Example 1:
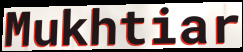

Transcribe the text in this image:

Mukhtiar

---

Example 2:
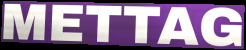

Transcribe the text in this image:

METTAG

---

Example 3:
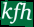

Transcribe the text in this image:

kfh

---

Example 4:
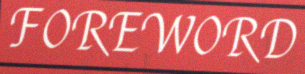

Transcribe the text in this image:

FOREWORD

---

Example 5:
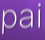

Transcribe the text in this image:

pai